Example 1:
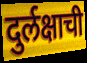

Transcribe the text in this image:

दुर्लक्षाची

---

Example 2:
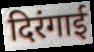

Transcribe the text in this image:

दिरंगाई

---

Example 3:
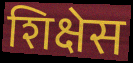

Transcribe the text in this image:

शिक्षेस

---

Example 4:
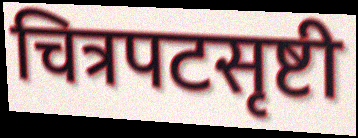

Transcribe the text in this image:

चित्रपटसृष्टी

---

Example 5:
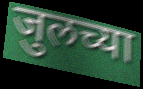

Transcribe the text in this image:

जुलच्या